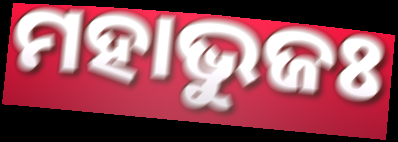
ମହାଭୁଜଃ